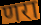
णरा